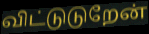
விட்டுடுறேன்